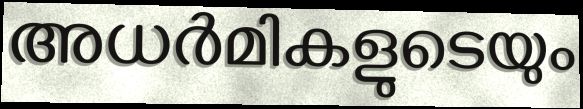
അധർമികളുടെയും